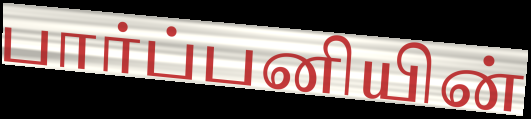
பார்ப்பனியின்